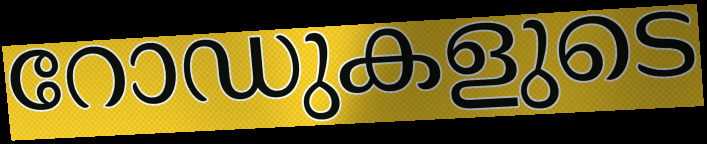
റോഡുകളുടെ